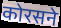
कोरसने